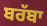
ਬਰੱਬਾ